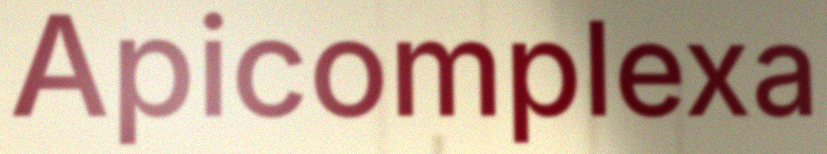
Apicomplexa